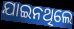
ଯାଇନଥିଲେ